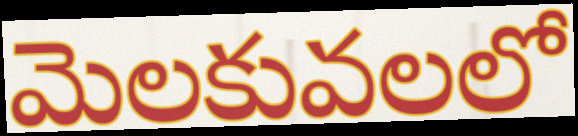
మెలకువలలో